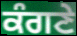
ਕੰਗਣੇ